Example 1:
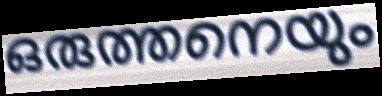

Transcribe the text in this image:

ഒരുത്തനെയും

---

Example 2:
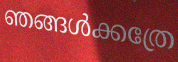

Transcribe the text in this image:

ഞങ്ങൾക്കത്രേ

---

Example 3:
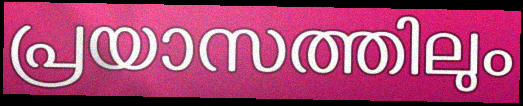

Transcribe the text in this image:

പ്രയാസത്തിലും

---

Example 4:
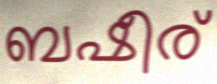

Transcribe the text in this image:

ബഷീര്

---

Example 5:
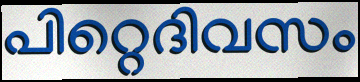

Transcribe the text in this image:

പിറ്റെദിവസം